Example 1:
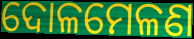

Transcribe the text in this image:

ଦୋଳମେଳଣ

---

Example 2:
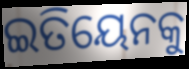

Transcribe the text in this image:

ଇତିୟେନକୁ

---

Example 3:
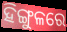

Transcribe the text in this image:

ହିଙ୍ଗୁଳରେ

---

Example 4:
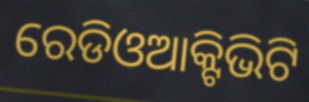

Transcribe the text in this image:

ରେଡିଓଆକ୍ଟିଭିଟି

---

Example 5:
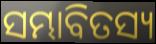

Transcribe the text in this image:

ସମ୍ଭାବିତସ୍ୟ